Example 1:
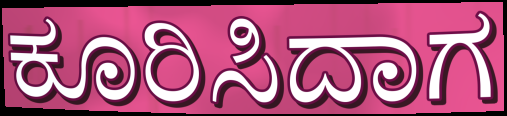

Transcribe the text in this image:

ಕೂರಿಸಿದಾಗ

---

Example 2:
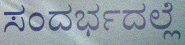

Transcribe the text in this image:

ಸಂದರ್ಭದಲ್ಲೆ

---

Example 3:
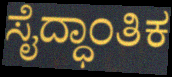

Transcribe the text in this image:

ಸೈದ್ಧಾಂತಿಕ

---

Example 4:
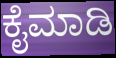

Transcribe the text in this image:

ಕೈಮಾಡಿ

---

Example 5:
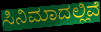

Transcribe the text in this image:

ಸಿನಿಮಾದಲ್ಲಿವೆ